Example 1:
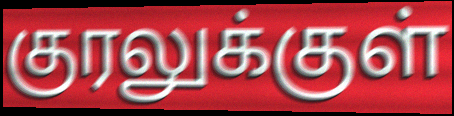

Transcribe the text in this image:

குரலுக்குள்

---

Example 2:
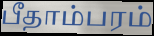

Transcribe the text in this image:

பீதாம்பரம்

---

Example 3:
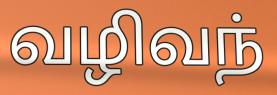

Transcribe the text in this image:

வழிவந்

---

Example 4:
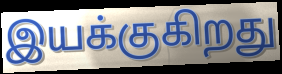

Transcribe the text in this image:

இயக்குகிறது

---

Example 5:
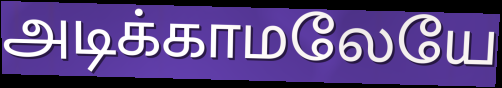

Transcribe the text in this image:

அடிக்காமலேயே